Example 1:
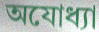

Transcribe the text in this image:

অযোধ্যা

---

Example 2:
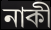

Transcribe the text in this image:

নাকী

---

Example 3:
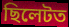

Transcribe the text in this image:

ছিলেটত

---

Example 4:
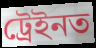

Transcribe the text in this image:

ট্ৰেইনত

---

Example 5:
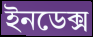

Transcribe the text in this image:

ইনডেক্স